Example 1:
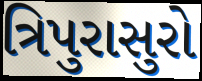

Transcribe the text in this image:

ત્રિપુરાસુરો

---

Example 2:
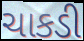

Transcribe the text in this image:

ચાકડી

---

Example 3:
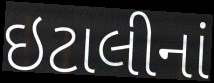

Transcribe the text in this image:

ઇટાલીનાં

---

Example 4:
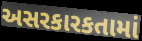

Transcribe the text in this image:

અસરકારકતામાં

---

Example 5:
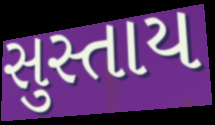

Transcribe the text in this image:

સુસ્તાય